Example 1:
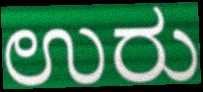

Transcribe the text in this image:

ಉರು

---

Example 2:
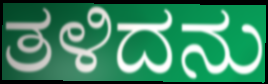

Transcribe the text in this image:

ತಳಿದನು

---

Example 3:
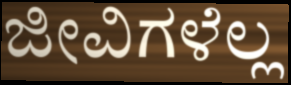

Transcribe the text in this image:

ಜೀವಿಗಳೆಲ್ಲ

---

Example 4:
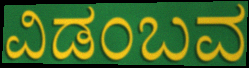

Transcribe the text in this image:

ವಿಡಂಬವ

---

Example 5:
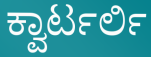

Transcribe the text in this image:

ಕ್ವಾರ್ಟರ್ಲಿ